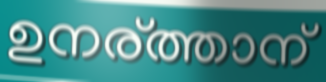
ഉനര്ത്താന്